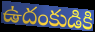
ఉదంకుడికి